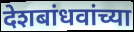
देशबांधवांच्या